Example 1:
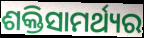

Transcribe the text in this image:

ଶକ୍ତିସାମର୍ଥ୍ୟର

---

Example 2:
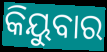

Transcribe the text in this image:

କିୟୁବାର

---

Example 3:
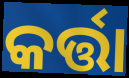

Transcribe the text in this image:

କର୍ତ୍ତା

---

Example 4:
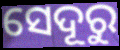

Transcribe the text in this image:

ସେଦୂରୁ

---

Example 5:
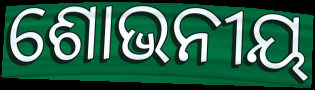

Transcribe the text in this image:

ଶୋଭନୀୟ